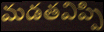
మడతవిప్పి